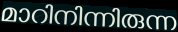
മാറിനിന്നിരുന്ന